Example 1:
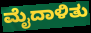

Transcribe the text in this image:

ಮೈದಾಳಿತು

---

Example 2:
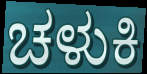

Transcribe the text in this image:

ಚಳುಕಿ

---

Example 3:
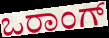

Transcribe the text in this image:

ಒರಾಂಗ್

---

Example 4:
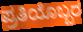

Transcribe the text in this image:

ಪ್ರತಿಯೊಬ್ಬರ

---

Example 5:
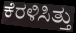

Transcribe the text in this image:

ಕೆರಳಿಸಿತ್ತು